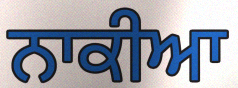
ਨਾਕੀਆ